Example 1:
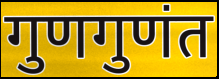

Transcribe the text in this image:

गुणगुणंत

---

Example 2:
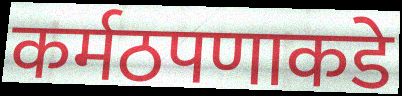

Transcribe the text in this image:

कर्मठपणाकडे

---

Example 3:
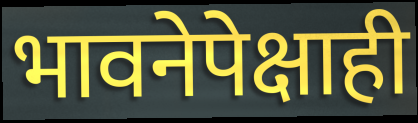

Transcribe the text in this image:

भावनेपेक्षाही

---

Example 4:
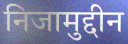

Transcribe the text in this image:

निजामुद्दीन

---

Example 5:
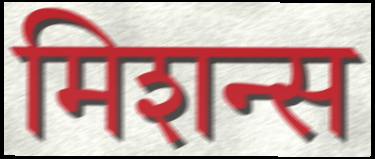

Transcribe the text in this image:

मिशन्स